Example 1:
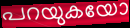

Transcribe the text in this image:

പറയുകയോ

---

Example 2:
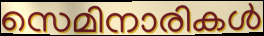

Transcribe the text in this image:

സെമിനാരികൾ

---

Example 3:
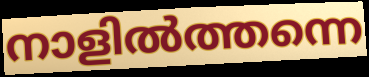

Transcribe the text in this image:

നാളിൽത്തന്നെ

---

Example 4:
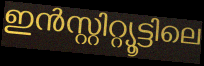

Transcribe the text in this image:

ഇൻസ്റ്റിറ്റ്യൂട്ടിലെ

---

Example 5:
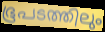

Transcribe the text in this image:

ഭൂപടത്തിലും